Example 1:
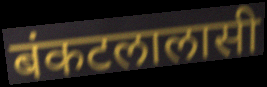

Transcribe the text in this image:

बंकटलालासी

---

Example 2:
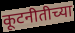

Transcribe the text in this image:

कूटनीतीच्या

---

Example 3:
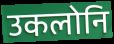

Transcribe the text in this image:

उकलोनि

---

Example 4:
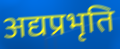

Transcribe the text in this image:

अद्यप्रभृति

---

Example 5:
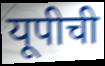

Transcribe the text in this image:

यूपीची